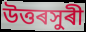
উত্তৰসুৰী